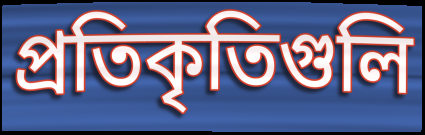
প্রতিকৃতিগুলি